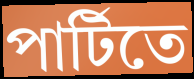
পার্টিতে